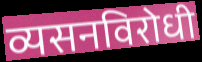
व्यसनविरोधी